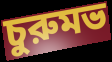
চুরুমভ